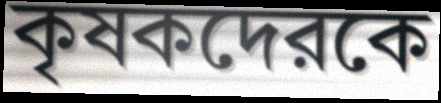
কৃষকদেরকে